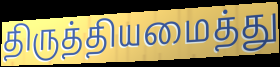
திருத்தியமைத்து